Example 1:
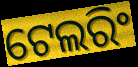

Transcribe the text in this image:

ଟେଲରିଂ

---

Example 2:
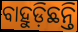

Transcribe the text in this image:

ବାହୁଡ଼ିଛନ୍ତି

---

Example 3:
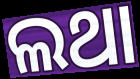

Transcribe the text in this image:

ଲଥା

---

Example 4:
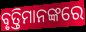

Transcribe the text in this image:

ବୃତ୍ତିମାନଙ୍କରେ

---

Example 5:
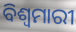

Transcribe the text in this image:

ବିଶ୍ୱମାରୀ